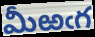
మీఱఁగ